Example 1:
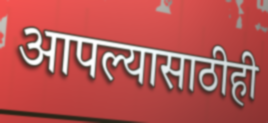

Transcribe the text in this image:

आपल्यासाठीही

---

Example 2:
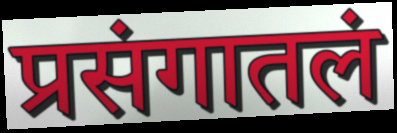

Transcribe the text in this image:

प्रसंगातलं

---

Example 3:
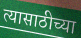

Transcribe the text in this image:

त्यासाठीच्या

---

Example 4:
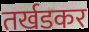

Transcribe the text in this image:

तर्खडकर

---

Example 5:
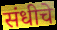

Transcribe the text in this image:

संधीचे